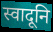
स्वादूनि